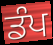
ਡੰਪ